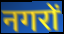
नगरों